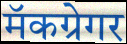
मॅकग्रेगर